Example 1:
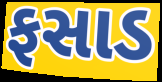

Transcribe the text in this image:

ફસાડ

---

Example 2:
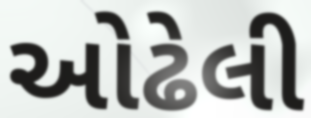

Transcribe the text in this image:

ઓઢેલી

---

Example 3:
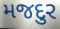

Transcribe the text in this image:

મજદુર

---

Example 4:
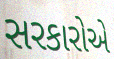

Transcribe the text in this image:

સરકારોએ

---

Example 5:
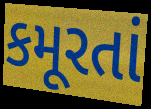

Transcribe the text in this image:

કમૂરતાં